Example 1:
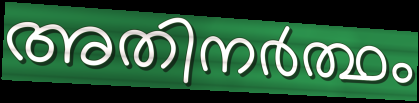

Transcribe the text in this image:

അതിനർത്ഥം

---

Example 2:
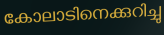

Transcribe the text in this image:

കോലാടിനെക്കുറിച്ചു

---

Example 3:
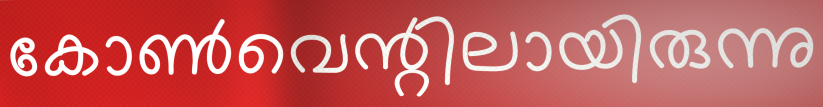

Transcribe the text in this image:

കോൺവെന്റിലായിരുന്നു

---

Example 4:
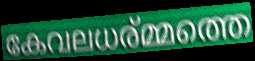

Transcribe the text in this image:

കേവലധര്മ്മത്തെ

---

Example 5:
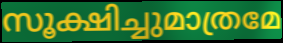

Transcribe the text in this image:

സൂക്ഷിച്ചുമാത്രമേ